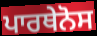
ਪਾਰਥੇਨੋਸ